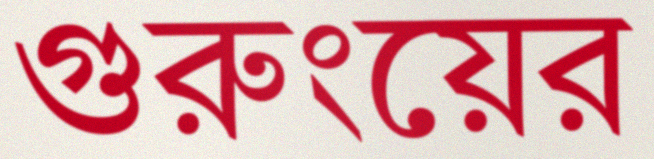
গুরুংয়ের